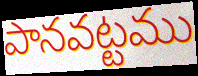
పానవట్టము